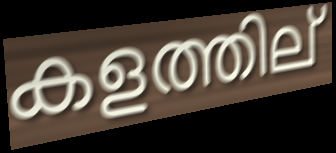
കളത്തില്